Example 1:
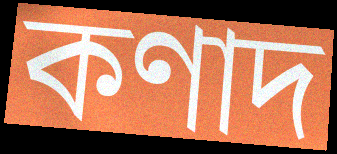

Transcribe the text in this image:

কণাদ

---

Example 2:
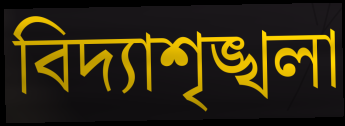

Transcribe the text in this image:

বিদ্যাশৃঙ্খলা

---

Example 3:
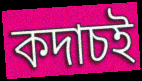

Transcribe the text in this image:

কদাচই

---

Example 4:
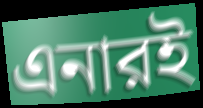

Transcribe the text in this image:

এনারই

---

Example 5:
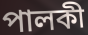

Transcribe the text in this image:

পালকী